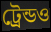
ট্রেন্ডও